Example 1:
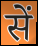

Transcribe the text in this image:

सें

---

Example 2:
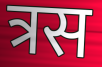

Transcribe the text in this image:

त्रस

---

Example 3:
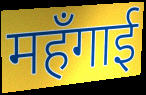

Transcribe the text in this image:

महँगाई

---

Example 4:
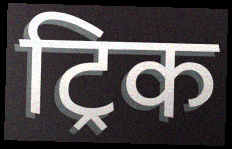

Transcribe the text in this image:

ट्रिक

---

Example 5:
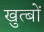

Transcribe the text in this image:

खुत्बों